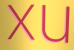
xu